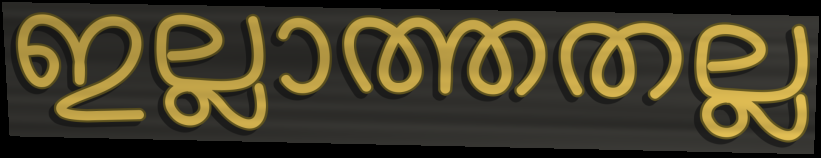
ഇല്ലാത്തതല്ല